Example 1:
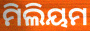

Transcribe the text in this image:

ମିଲିୟମ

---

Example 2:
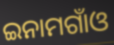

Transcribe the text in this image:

ଇନାମଗାଁଓ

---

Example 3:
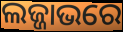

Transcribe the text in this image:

ଲଜ୍ଜାଭରେ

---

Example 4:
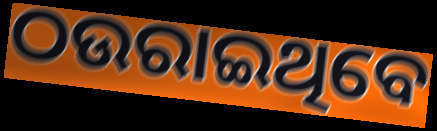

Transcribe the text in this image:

ଠଉରାଇଥିବେ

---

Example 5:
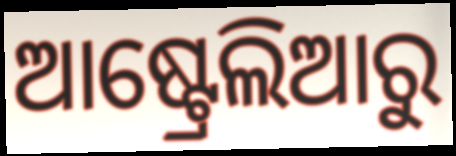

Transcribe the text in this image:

ଆଷ୍ଟ୍ରେଲିଆରୁ